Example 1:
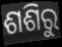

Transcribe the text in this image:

ଶଶିରୁ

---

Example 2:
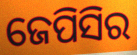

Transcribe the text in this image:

ଜେପିସିର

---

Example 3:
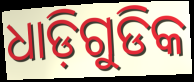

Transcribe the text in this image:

ଧାଡ଼ିଗୁଡିକ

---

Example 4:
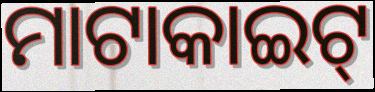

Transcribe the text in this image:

ମାଟାକାଇଟ୍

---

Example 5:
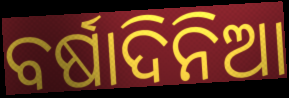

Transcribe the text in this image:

ବର୍ଷାଦିନିଆ